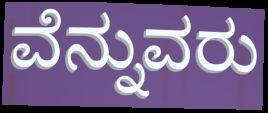
ವೆನ್ನುವರು